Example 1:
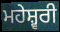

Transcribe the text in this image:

ਮਹੇਸ਼੍ਵਰੀ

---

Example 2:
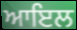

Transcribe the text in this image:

ਆਇਲ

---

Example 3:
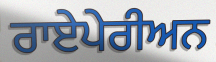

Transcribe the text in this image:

ਰਾਏਪੇਰੀਅਨ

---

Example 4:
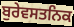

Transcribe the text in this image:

ਬੁਰੇਵਸਤਨਿਕ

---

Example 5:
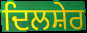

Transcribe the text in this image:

ਦਿਲਸ਼ੇਰ